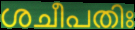
ശചീപതിഃ